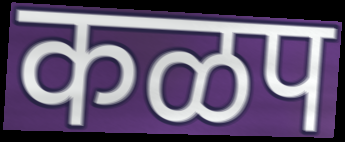
कळप